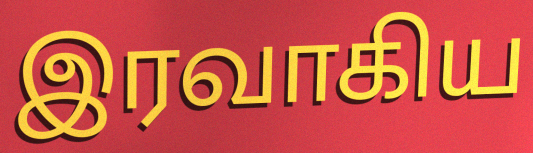
இரவாகிய